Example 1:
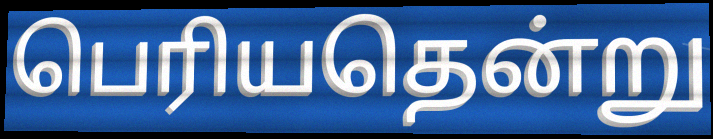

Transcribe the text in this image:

பெரியதென்று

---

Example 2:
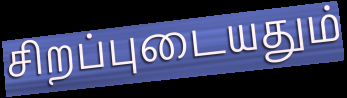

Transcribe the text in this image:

சிறப்புடையதும்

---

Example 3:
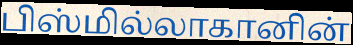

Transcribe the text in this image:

பிஸ்மில்லாகானின்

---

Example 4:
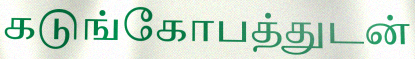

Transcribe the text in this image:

கடுங்கோபத்துடன்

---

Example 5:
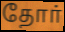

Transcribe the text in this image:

தோர்